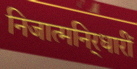
निजात्मनिर्धारीं